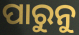
ପାରୁନୁ